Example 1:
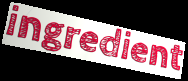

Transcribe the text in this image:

ingredient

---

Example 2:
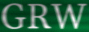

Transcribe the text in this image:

GRW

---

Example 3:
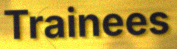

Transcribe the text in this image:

Trainees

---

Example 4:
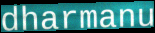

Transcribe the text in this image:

dharmanu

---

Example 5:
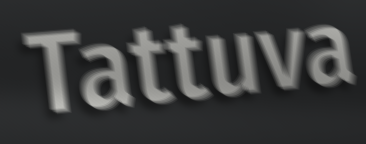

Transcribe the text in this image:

Tattuva